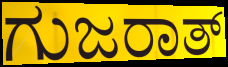
ಗುಜರಾತ್